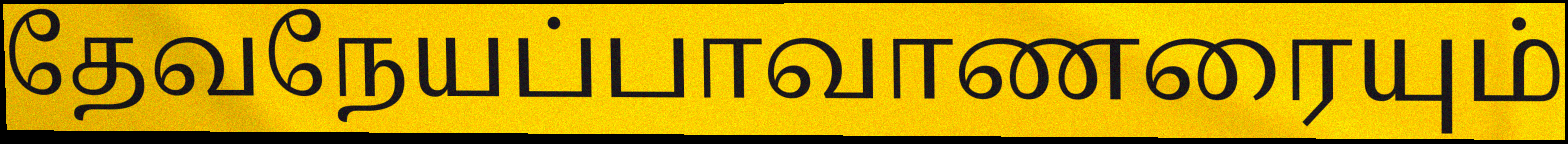
தேவநேயப்பாவாணரையும்